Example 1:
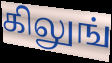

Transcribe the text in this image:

கிலுங்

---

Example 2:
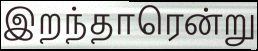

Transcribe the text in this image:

இறந்தாரென்று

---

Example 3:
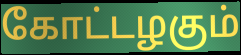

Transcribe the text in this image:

கோட்டழகும்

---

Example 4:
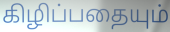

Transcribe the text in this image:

கிழிப்பதையும்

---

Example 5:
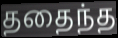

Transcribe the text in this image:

ததைந்த